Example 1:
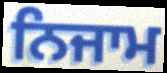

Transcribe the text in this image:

ਨਿਜਾਮ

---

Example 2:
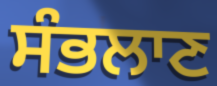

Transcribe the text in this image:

ਸੰਭਲਾਣ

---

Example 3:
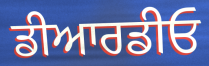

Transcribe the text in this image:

ਡੀਆਰਡੀਓ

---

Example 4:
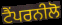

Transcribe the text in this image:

ਟੈਂਪਰਨੀਲੋ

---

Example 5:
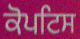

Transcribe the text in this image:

ਕੋਪਟਿਸ